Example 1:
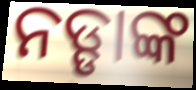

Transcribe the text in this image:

ନଡ୍ଡାଙ୍କ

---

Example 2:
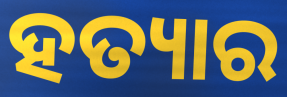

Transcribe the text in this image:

ହତ୍ୟାର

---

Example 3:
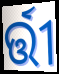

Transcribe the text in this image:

ର୍ତ୍ତୀ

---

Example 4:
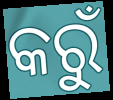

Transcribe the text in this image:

କରୁଁ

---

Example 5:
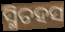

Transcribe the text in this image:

ସ୍ମିତହସ